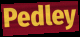
Pedley